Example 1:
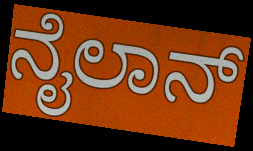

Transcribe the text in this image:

ನೈಲಾನ್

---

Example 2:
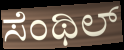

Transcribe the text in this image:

ಸೆಂಥಿಲ್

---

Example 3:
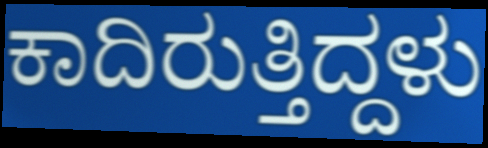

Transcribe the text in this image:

ಕಾದಿರುತ್ತಿದ್ದಳು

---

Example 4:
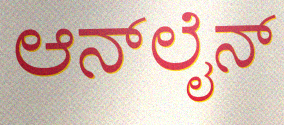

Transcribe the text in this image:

ಆನ್‌ಲೈನ್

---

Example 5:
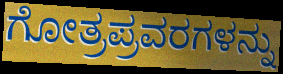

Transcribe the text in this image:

ಗೋತ್ರಪ್ರವರಗಳನ್ನು